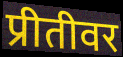
प्रीतीवर